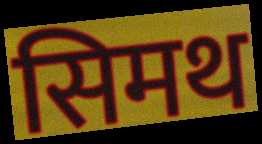
सिमथ